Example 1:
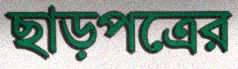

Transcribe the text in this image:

ছাড়পত্রের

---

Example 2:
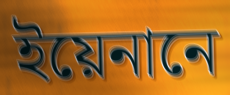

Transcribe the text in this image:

ইয়েনানে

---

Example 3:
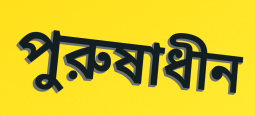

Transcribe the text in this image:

পুরুষাধীন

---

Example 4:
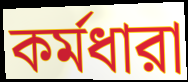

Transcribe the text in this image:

কর্মধারা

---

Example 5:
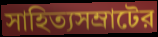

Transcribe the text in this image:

সাহিত্যসম্রাটের